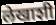
लेखाशी